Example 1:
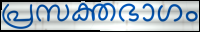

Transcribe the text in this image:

പ്രസക്തഭാഗം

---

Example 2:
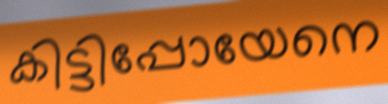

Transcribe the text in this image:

കിട്ടിപ്പോയേനെ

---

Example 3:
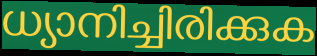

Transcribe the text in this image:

ധ്യാനിച്ചിരിക്കുക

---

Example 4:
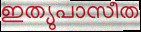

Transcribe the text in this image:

ഇത്യുപാസീത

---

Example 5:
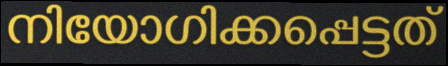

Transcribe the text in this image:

നിയോഗിക്കപ്പെട്ടത്